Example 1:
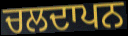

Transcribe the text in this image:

ਚਲਦਾਪਨ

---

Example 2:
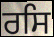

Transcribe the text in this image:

ਰਸਿ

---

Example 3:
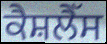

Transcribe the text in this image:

ਕੈਸ਼ਲੈੱਸ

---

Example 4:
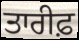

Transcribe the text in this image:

ਤਾਰੀਫ਼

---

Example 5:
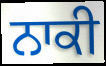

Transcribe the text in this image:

ਨਾਕੀ